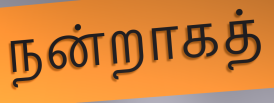
நன்றாகத்